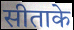
सीताके